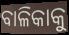
ବାଳିକାକୁ